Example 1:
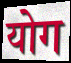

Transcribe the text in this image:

योग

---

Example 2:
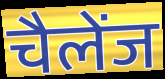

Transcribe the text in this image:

चैलेंज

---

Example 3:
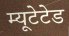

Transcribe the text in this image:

म्यूटेटेड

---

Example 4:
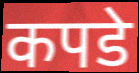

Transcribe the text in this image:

कपडे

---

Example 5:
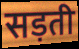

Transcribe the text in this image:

सड़ती